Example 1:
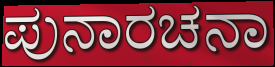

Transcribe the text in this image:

ಪುನಾರಚನಾ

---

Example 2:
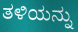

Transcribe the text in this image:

ತಳಿಯನ್ನು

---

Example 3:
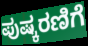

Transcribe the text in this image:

ಪುಷ್ಕರಣಿಗೆ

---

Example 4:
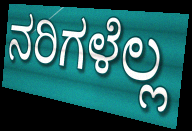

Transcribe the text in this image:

ನರಿಗಳೆಲ್ಲ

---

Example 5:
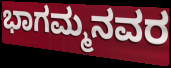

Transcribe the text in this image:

ಭಾಗಮ್ಮನವರ